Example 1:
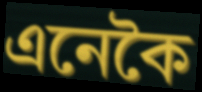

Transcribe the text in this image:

এনেকৈ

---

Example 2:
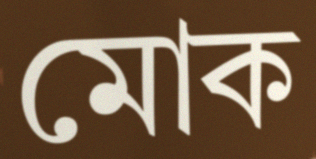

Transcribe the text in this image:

মোক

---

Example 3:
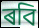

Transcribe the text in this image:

ৰবি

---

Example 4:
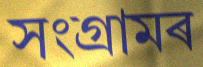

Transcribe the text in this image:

সংগ্ৰামৰ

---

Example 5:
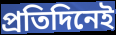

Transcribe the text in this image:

প্ৰতিদিনেই